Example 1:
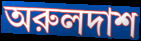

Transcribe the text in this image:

অরুলদাশ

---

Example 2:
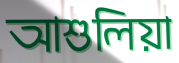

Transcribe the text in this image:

আশুলিয়া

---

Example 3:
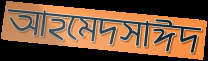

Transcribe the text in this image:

আহমেদসাঈদ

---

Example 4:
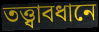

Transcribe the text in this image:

তত্ত্বাবধানে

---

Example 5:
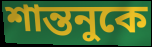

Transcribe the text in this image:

শান্তনুকে